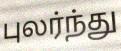
புலர்ந்து